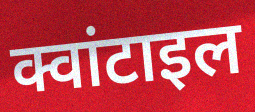
क्वांटाइल